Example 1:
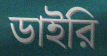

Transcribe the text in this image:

ডাইরি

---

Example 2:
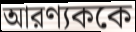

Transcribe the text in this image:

আরণ্যককে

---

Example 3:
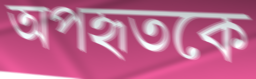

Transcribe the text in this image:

অপহৃতকে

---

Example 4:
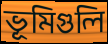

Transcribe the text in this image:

ভূমিগুলি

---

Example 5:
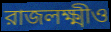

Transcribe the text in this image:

রাজলক্ষ্মীও